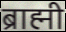
ब्राह्मी